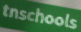
tnschools